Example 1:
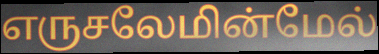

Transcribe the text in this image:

எருசலேமின்மேல்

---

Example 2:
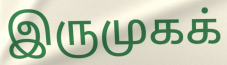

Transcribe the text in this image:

இருமுகக்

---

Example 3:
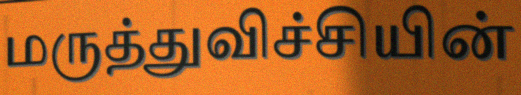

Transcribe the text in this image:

மருத்துவிச்சியின்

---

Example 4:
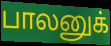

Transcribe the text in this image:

பாலனுக்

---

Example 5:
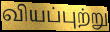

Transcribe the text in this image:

வியப்புற்று